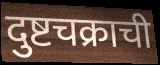
दुष्टचक्राची